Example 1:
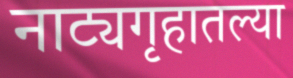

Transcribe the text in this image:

नाट्यगृहातल्या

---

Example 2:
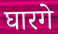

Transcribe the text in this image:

घारगे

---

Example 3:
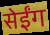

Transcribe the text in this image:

सेईंग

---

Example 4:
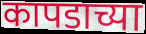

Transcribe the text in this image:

कापडाच्या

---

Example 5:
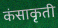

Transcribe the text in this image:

कंसाकृती